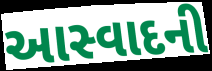
આસ્વાદની